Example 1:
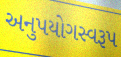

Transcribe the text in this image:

અનુપયોગસ્વરૂપ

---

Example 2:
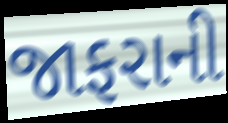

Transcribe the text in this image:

જાફરાની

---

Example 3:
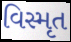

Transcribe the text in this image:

વિસ્મૃત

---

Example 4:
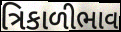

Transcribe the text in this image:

ત્રિકાળીભાવ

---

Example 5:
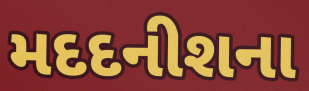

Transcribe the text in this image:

મદદનીશના